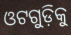
ଓଟଗୁଡ଼ିକୁ